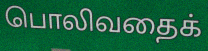
பொலிவதைக்